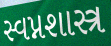
સ્વપ્નશાસ્ત્ર